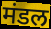
मंडल